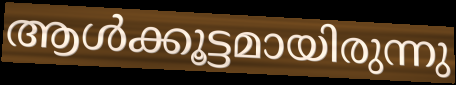
ആൾക്കൂട്ടമായിരുന്നു